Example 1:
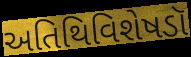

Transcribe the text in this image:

અતિથિવિશેષડૉ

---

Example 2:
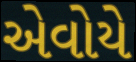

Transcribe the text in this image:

એવોયે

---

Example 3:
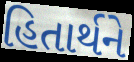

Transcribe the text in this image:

હિતાર્થને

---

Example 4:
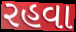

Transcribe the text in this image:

રહવા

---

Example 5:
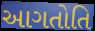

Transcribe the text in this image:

આગતોતિ